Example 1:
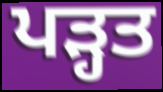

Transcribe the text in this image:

ਪਡ਼੍ਹਤ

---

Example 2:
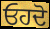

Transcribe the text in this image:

ਓਹਦੋ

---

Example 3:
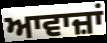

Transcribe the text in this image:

ਆਵਾਜ਼ਾਂ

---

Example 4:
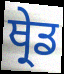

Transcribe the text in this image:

ਥ੍ਰੇਡ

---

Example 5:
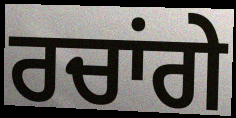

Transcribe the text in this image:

ਰਚਾਂਗੇ